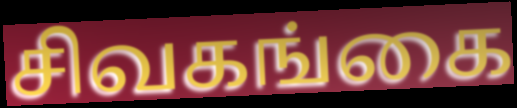
சிவகங்கை